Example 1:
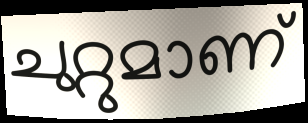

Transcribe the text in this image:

ചുറ്റുമാണ്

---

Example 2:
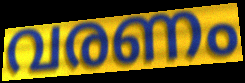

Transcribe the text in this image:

വരണം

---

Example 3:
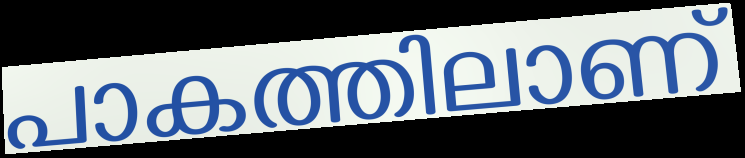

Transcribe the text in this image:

പാകത്തിലാണ്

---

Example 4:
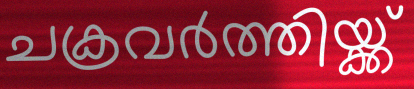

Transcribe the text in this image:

ചക്രവർത്തിയ്ക്ക്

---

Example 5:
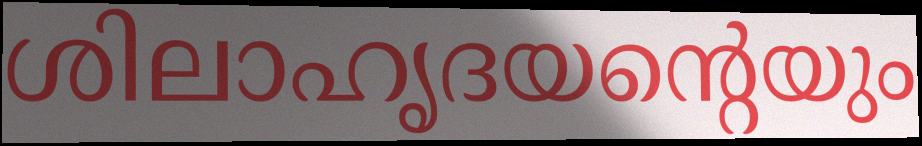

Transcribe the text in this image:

ശിലാഹൃദയന്റെയും